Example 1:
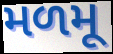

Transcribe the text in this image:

મળમૂ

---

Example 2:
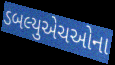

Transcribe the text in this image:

ડબલ્યુએચઓના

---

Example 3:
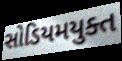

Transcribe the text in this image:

સોડિયમયુક્ત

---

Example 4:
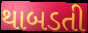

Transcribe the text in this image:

થાબડતી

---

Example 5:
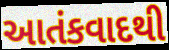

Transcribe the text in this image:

આતંકવાદથી